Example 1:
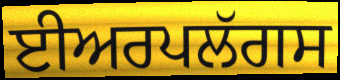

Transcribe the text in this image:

ਈਅਰਪਲੱਗਸ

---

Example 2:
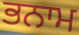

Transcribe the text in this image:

ਭਨਾਮ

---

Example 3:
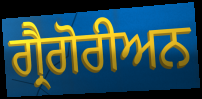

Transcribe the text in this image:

ਗ੍ਰੈਗੋਰੀਅਨ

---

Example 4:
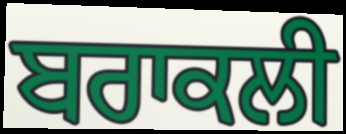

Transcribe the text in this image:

ਬਰਾਕਲੀ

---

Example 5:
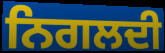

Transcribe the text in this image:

ਨਿਗਲਦੀ